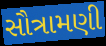
સૌત્રામણી